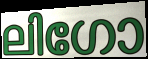
ലിഗോ